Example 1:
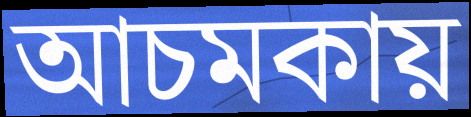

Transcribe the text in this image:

আচমকায়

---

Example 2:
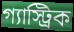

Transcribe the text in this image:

গ্যাস্ট্রিক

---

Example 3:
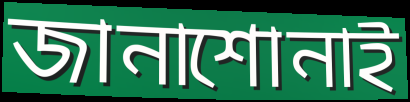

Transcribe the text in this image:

জানাশোনাই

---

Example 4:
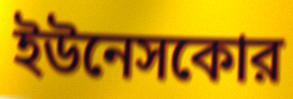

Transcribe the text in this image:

ইউনেসকোর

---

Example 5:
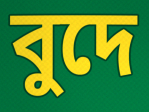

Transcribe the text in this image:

বুদে